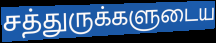
சத்துருக்களுடைய